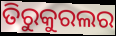
ତିରୁକୁରଲର